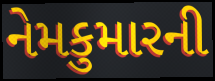
નેમકુમારની